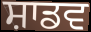
ਸ਼ਾਡਵ